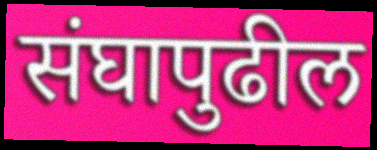
संघापुढील